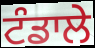
ਟੰਡਾਲੇ